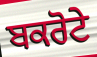
ਬਕਰੋਟੇ